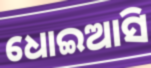
ଧୋଇଆସି